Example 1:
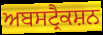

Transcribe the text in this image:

ਅਬਸਟ੍ਰੈਕਸ਼ਨ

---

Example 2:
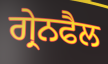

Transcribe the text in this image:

ਗ੍ਰੇਨਫੈਲ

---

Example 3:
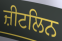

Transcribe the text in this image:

ਜ਼ੀਟਲਿਨ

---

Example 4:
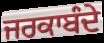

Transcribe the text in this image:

ਜਰਕਾਬੰਦੇ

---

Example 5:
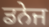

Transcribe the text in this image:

ਡਨੇਜ